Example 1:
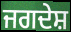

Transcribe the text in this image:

ਜਗਦੇਸ਼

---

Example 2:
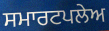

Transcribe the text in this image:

ਸਮਾਰਟਪਲੇਅ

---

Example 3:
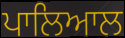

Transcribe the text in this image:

ਪਾਲਿਆਲ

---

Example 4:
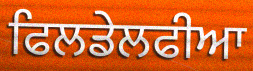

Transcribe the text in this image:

ਫਿਲਡੇਲਫੀਆ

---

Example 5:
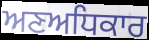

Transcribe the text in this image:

ਅਣਅਧਿਕਾਰ